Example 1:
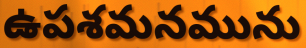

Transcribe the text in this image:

ఉపశమనమును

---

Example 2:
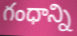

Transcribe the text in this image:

గంధాన్ని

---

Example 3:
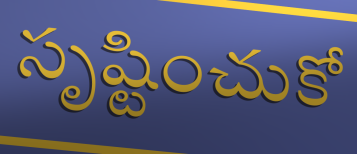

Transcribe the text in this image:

సృష్టించుకో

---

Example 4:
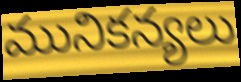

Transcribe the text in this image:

మునికన్యలు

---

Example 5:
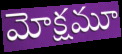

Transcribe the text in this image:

మోక్షమూ